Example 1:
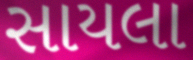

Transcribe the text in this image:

સાયલા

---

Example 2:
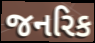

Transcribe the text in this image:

જનરિક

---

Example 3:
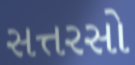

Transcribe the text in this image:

સત્તરસો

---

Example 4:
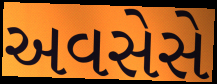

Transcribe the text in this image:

અવસેસે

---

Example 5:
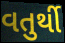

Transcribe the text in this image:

વતુર્થી